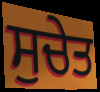
ਸੁਚੇਤ